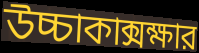
উচ্চাকাক্সক্ষার